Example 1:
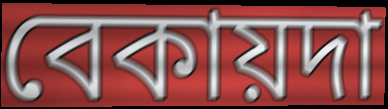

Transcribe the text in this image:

বেকায়দা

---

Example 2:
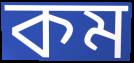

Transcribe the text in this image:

কম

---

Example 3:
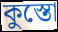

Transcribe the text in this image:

কুস্তো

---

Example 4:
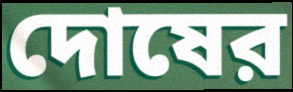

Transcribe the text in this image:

দোষের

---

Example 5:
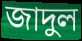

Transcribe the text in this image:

জাদুল